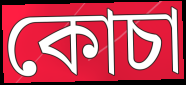
কোচা